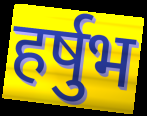
हर्षुभ